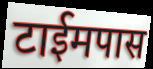
टाईमपास